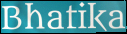
Bhatika